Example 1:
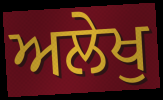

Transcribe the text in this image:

ਅਲੇਖੁ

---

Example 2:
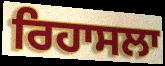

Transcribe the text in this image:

ਰਿਹਾਸਲਾ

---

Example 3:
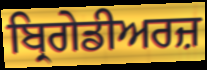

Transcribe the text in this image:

ਬ੍ਰਿਗੇਡੀਅਰਜ਼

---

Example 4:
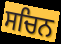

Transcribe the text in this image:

ਸਚਿਨ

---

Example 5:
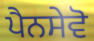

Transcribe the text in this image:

ਪੈਨਸੇਵੋ